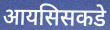
आयसिसकडे